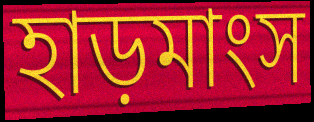
হাড়মাংস